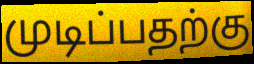
முடிப்பதற்கு